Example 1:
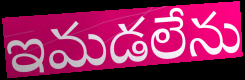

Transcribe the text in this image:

ఇమడలేను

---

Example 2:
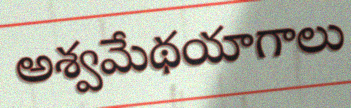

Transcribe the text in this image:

అశ్వమేథయాగాలు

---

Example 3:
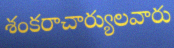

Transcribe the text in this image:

శంకరాచార్యులవారు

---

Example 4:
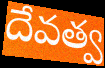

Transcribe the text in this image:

దేవత్వ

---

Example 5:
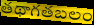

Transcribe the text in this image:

తథాగతబలం